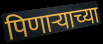
पिणाऱ्याच्या